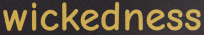
wickedness